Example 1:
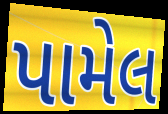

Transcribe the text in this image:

પામેલ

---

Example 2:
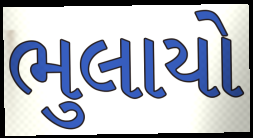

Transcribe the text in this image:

ભુલાયો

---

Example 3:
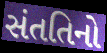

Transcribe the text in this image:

સંતતિનો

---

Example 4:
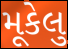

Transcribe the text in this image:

મૂકેલુ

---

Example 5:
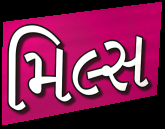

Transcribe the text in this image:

મિલ્સ